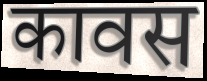
कावस